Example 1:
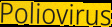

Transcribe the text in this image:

Poliovirus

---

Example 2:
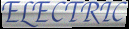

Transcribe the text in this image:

ELECTRIC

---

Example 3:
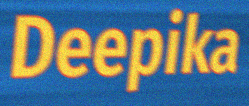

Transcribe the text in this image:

Deepika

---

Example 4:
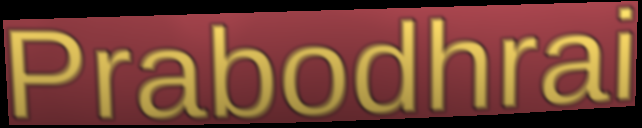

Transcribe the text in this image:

Prabodhrai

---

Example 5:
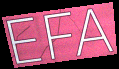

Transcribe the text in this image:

EFA